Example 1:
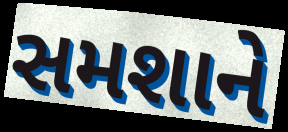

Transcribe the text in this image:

સમશાને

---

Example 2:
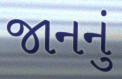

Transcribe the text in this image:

જાનનું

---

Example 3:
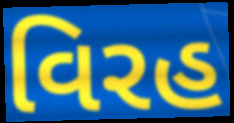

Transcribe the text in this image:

વિરહ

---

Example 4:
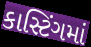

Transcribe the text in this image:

કાસ્ટિંગમાં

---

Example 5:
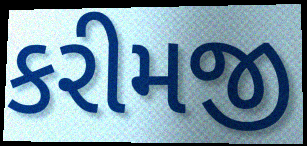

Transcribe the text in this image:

કરીમજી